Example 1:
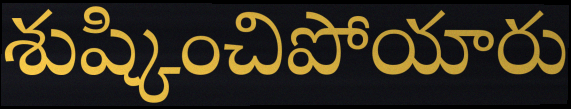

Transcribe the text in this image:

శుష్కించిపోయారు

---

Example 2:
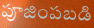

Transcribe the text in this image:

పూజింపబడి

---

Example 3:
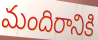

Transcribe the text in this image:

మందిరానికి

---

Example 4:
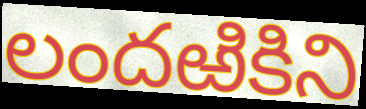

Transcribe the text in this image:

లందఱికిని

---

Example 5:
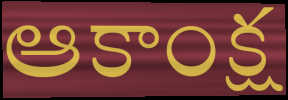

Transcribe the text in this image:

ఆకాంక్ష